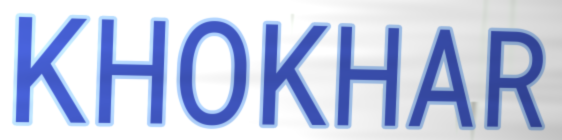
KHOKHAR